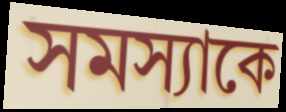
সমস্যাকে